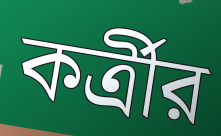
কর্ত্রীর